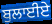
ਬੁਲਾਈਏ